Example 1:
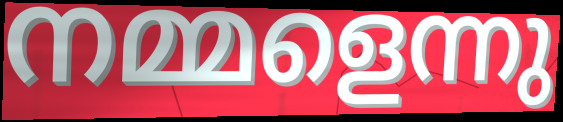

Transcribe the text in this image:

നമ്മളെന്നു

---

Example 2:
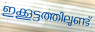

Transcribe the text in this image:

ഇക്കൂട്ടത്തിലുണ്ട്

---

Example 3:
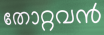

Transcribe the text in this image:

തോറ്റവൻ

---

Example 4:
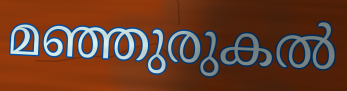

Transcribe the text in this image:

മഞ്ഞുരുകൽ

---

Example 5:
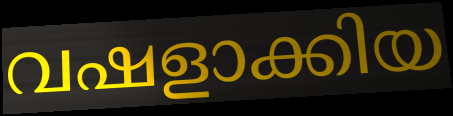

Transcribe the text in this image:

വഷളാക്കിയ